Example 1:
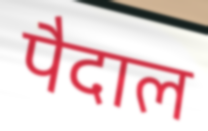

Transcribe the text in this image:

पैदाल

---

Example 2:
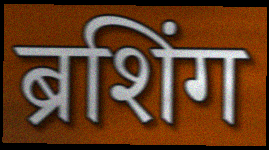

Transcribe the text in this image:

ब्रशिंग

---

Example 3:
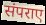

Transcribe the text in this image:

संपराए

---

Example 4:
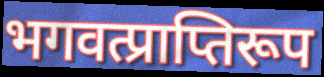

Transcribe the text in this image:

भगवत्प्राप्तिरूप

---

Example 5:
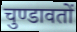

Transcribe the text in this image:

चुण्डावतों